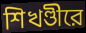
শিখণ্ডীরে